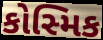
કોસ્મિક